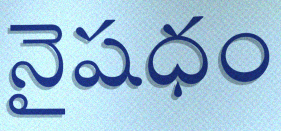
నైషధం